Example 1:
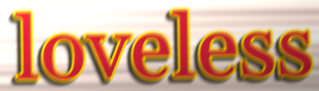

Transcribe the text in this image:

loveless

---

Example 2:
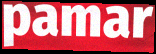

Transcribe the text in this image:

pamar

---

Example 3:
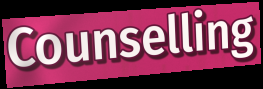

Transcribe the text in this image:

Counselling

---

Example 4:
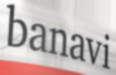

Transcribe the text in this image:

banavi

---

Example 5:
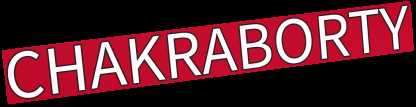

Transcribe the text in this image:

CHAKRABORTY